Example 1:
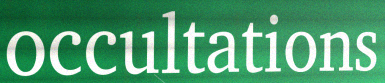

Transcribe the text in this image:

occultations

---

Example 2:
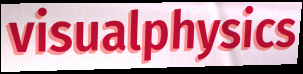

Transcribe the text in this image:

visualphysics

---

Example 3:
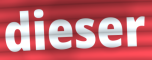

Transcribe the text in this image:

dieser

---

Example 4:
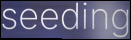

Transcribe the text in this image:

seeding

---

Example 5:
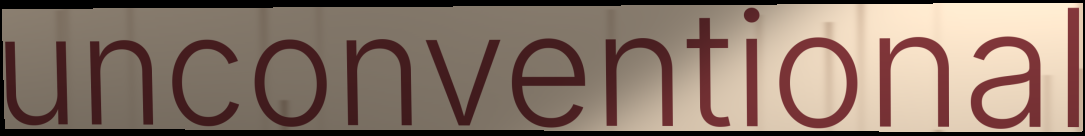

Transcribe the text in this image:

unconventional